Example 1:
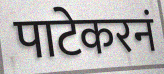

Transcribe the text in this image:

पाटेकरनं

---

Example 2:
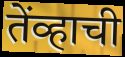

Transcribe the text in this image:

तेंव्हाची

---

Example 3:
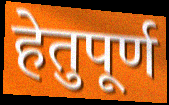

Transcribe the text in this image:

हेतुपूर्ण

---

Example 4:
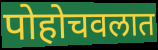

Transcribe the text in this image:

पोहोचवलात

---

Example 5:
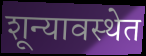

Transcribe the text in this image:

शून्यावस्थेत